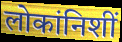
लोकांनिशीं